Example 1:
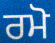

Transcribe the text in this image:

ਰਮੋ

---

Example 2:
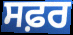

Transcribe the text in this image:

ਸਫ਼ਰ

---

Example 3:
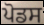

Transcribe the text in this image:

ਪੋਡਸ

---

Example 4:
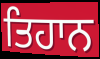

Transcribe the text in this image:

ਤਿਹਾਨ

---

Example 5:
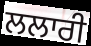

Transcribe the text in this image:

ਲਲਾਰੀ